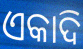
ଏକାଦି